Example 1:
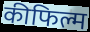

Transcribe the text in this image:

कीफिल्म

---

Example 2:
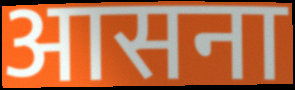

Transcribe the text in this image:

आसना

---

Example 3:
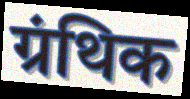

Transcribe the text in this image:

ग्रंथिक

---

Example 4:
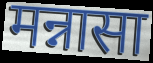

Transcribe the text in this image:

मन्नासा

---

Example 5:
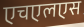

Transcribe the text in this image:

एचएलएस